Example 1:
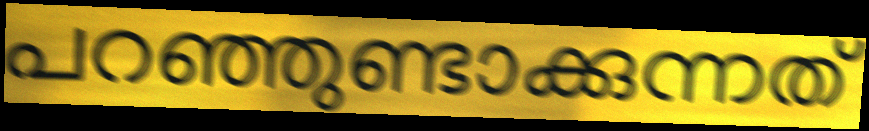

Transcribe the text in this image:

പറഞ്ഞുണ്ടാക്കുന്നത്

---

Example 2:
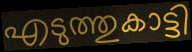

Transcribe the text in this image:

എടുത്തുകാട്ടി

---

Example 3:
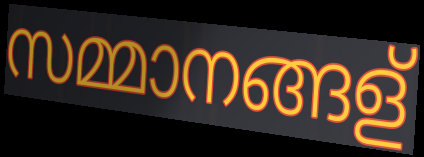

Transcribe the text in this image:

സമ്മാനങ്ങള്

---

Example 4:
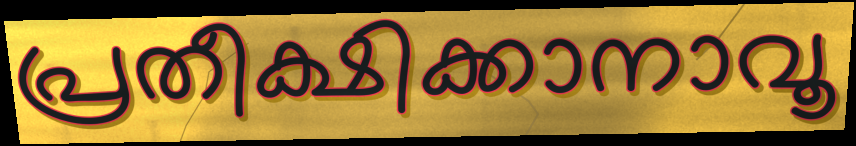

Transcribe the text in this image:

പ്രതീക്ഷിക്കാനാവൂ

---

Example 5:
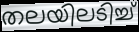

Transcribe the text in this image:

തലയിലടിച്ച്